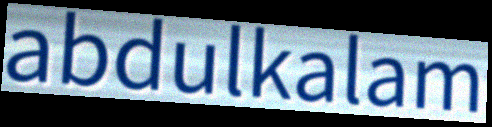
abdulkalam